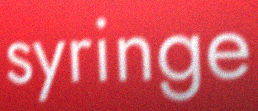
syringe